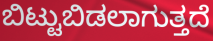
ಬಿಟ್ಟುಬಿಡಲಾಗುತ್ತದೆ